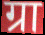
ग्रा